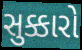
સુક્કારો